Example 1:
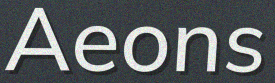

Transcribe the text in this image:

Aeons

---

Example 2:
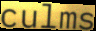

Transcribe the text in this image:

culms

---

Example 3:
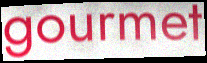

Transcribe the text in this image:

gourmet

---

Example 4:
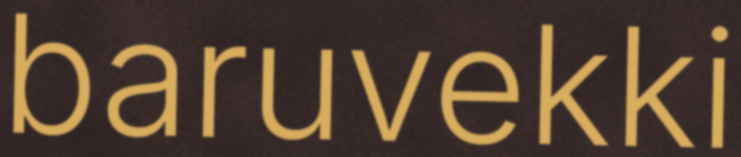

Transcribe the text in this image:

baruvekki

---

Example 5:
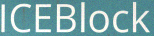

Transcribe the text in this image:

ICEBlock